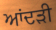
ਆਂਦੜੀ